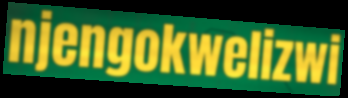
njengokwelizwi